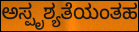
ಅಸ್ಪೃಶ್ಯತೆಯಂತಹ